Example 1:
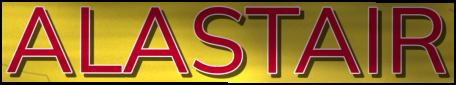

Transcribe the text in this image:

ALASTAIR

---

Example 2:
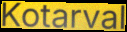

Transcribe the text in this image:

Kotarval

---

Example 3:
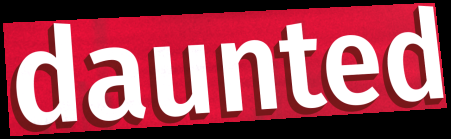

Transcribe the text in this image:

daunted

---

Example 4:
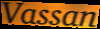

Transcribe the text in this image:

Vassan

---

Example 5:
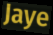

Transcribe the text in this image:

Jaye